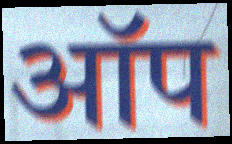
ऑप